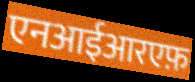
एनआईआरएफ़